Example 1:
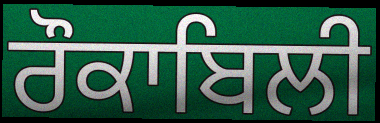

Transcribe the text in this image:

ਰੌਕਾਬਿਲੀ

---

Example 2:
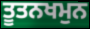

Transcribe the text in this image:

ਤੂਤਨਖਮੁਨ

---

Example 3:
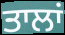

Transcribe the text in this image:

ਤਾਲਾਂ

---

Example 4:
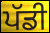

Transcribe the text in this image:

ਪੱਡੀ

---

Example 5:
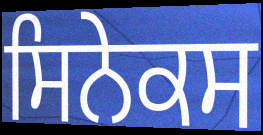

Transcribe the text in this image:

ਸਿਨੇਕਸ